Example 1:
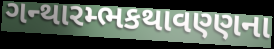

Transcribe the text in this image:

ગન્થારમ્ભકથાવણ્ણના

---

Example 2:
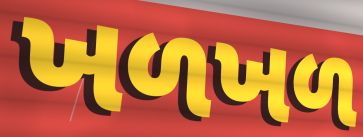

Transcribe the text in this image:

ખળખળ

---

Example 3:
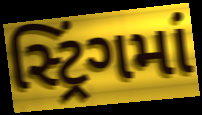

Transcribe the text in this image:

સ્ટ્રિંગમાં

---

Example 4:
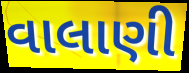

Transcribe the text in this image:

વાલાણી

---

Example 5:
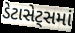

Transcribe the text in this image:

ડેટાસેટ્સમાં